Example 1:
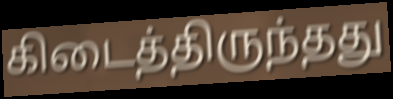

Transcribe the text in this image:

கிடைத்திருந்தது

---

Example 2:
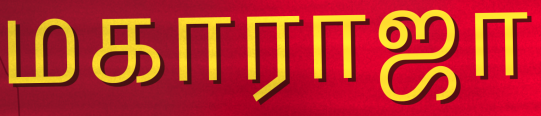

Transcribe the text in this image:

மகாராஜா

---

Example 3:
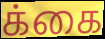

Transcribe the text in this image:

க்கை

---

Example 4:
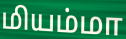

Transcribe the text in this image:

மியம்மா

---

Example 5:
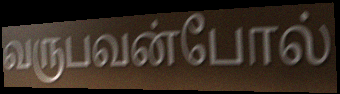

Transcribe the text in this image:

வருபவன்போல்